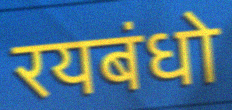
रयबंधो